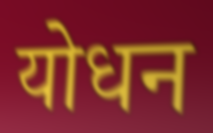
योधन